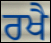
ਰਖੈ